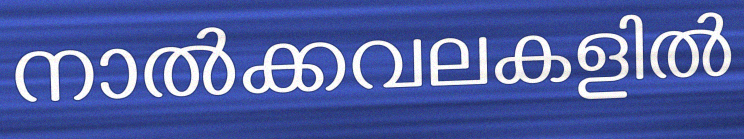
നാൽക്കവലകളിൽ